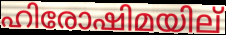
ഹിരോഷിമയില്